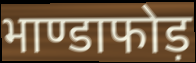
भाण्डाफोड़